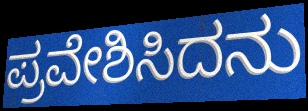
ಪ್ರವೇಶಿಸಿದನು